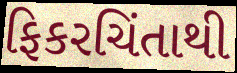
ફિકરચિંતાથી